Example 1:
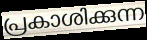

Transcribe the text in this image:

പ്രകാശിക്കുന്ന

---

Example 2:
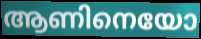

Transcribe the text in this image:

ആണിനെയോ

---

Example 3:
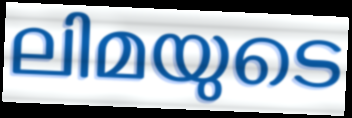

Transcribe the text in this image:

ലിമയുടെ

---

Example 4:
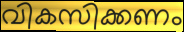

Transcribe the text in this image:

വികസിക്കണം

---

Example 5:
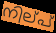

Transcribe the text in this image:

നില്പ്